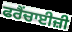
ਫਰੈਂਚਾਈਜ਼ੀ